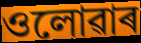
ওলোৱাৰ